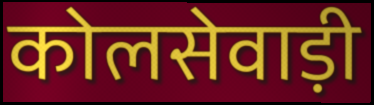
कोलसेवाड़ी